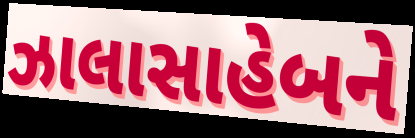
ઝાલાસાહેબને